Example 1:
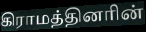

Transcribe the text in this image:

கிராமத்தினரின்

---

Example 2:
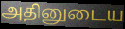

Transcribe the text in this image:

அதினுடைய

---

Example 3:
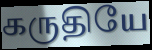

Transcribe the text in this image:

கருதியே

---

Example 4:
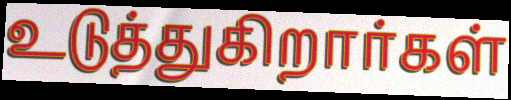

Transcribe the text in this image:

உடுத்துகிறார்கள்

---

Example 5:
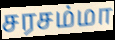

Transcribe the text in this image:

சரசம்மா